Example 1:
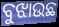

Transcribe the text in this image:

ବୁଝାଉଛ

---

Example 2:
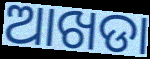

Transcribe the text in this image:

ଆଖଡା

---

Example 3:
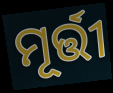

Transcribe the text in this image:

ମୂର୍ତ୍ତୀ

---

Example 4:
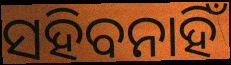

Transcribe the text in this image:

ସହିବନାହିଁ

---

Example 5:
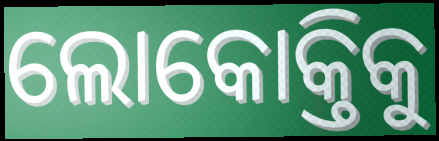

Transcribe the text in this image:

ଲୋକୋକ୍ତିକୁ